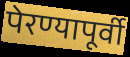
पेरण्यापूर्वी